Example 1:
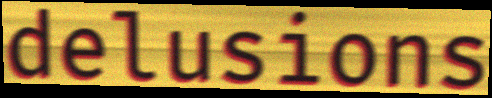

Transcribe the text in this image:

delusions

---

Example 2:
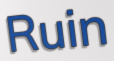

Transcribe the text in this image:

Ruin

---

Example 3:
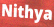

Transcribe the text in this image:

Nithya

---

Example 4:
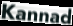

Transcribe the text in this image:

Kannad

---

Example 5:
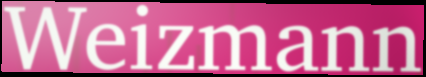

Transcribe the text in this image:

Weizmann